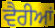
ਵੈਰੀਆਂ